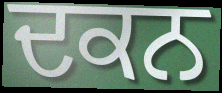
ਦਕਨ